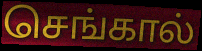
செங்கால்